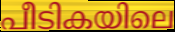
പീടികയിലെ